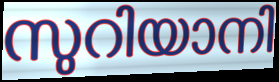
സുറിയാനി